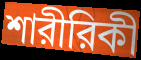
শারীরিকী